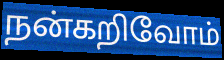
நன்கறிவோம்